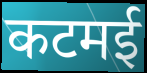
कटमई